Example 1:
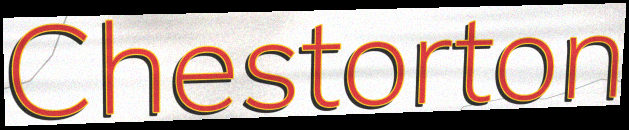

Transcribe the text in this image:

Chestorton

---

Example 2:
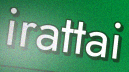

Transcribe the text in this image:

irattai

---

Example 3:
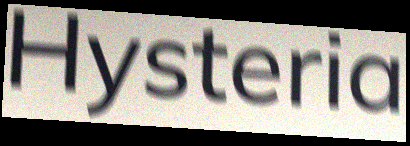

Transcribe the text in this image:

Hysteria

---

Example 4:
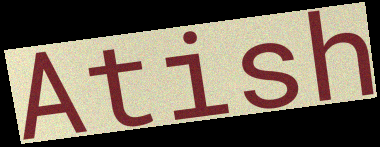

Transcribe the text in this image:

Atish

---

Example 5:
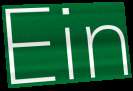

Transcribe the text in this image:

Ein